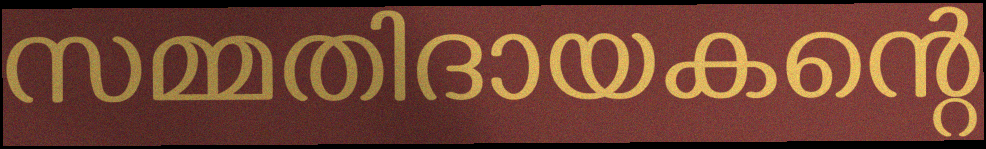
സമ്മതിദായകന്റെ